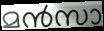
മൻസാ